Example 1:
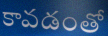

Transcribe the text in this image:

కావడంతో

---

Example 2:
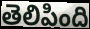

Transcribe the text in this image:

తెలిపింది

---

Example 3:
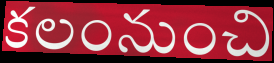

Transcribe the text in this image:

కలంనుంచి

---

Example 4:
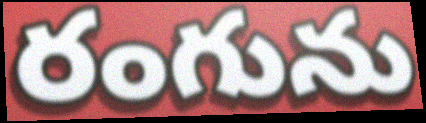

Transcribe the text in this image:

రంగును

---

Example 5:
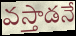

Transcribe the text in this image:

వస్తాడనే